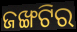
ଜଙ୍ଖଟିର